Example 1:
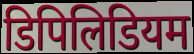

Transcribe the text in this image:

डिपिलिडियम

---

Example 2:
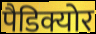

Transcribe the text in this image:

पैडिक्योर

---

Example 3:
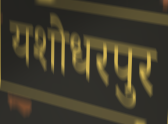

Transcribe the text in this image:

यशोधरपुर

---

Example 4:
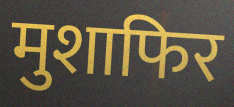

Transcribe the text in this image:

मुशाफिर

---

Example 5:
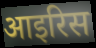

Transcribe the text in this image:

आइरिस